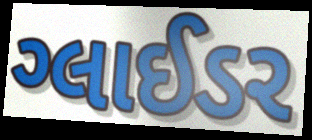
ગ્લાઈડર